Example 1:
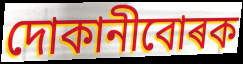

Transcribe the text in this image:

দোকানীবোৰক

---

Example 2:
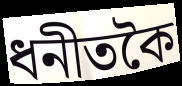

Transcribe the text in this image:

ধনীতকৈ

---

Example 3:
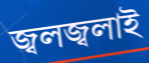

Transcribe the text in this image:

জ্বলজ্বলাই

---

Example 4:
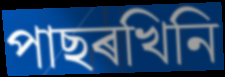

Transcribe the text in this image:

পাছৰখিনি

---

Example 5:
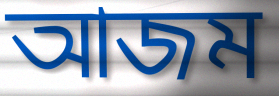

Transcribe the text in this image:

আজম